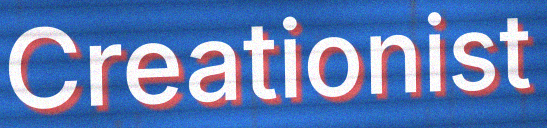
Creationist